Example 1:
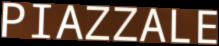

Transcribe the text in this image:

PIAZZALE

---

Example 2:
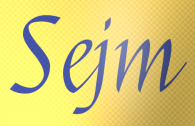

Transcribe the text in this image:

Sejm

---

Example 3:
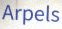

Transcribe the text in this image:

Arpels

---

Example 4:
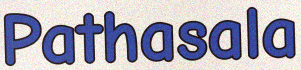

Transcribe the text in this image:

Pathasala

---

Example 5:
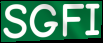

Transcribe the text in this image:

SGFI